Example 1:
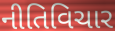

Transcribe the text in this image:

નીતિવિચાર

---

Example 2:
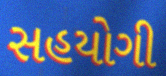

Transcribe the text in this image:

સહયોગી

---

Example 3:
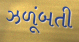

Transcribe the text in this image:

ઝળૂંબતી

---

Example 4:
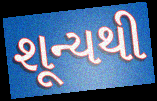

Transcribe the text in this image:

શૂન્યથી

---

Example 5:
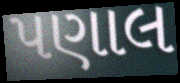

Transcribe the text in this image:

પણાલ